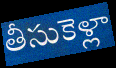
తీసుకెళ్లా